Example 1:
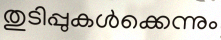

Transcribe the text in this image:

തുടിപ്പുകൾക്കെന്നും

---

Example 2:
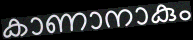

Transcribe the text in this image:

കാണാനാകും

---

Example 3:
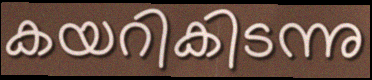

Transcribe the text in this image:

കയറികിടന്നു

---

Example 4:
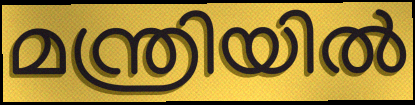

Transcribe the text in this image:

മന്ത്രിയിൽ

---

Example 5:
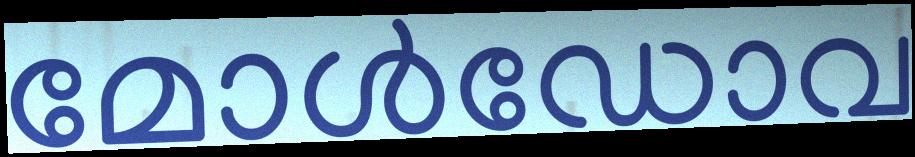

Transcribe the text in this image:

മോൾഡോവ